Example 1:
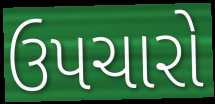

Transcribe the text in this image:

ઉપચારો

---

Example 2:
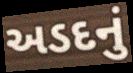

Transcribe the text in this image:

અડદનું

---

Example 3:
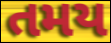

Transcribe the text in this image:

તમય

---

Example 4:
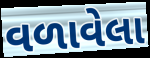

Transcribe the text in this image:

વળાવેલા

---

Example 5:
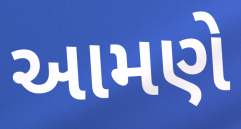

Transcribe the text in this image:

આમણે